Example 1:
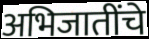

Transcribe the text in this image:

अभिजातींचे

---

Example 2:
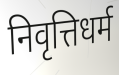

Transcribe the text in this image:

निवृत्तिधर्म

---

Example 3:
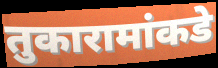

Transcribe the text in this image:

तुकारामांकडे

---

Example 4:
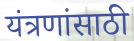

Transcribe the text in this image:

यंत्रणांसाठी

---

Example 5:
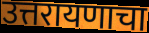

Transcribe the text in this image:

उत्तरायणाचा